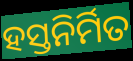
ହସ୍ତନିର୍ମିତ